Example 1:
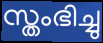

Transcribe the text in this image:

സ്തംഭിച്ചു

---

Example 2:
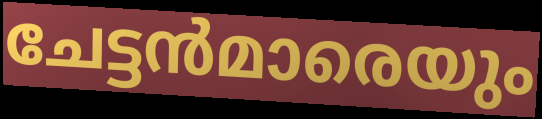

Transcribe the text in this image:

ചേട്ടൻമാരെയും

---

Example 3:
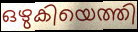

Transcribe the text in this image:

ഒഴുകിയെത്തി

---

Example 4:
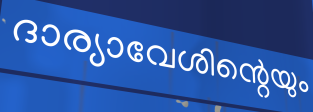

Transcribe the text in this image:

ദാര്യാവേശിന്റെയും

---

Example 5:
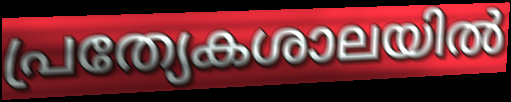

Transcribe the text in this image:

പ്രത്യേകശാലയിൽ